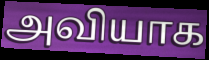
அவியாக